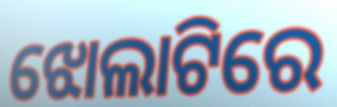
ଝୋଲାଟିରେ